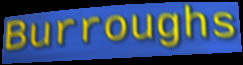
Burroughs